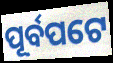
ପୂର୍ବପଟେ